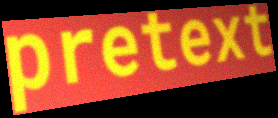
pretext